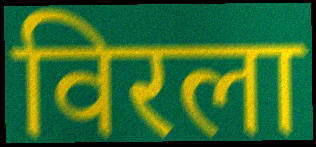
विरला